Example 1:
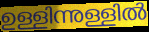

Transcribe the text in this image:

ഉള്ളിന്നുള്ളിൽ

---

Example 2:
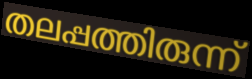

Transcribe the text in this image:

തലപ്പത്തിരുന്ന്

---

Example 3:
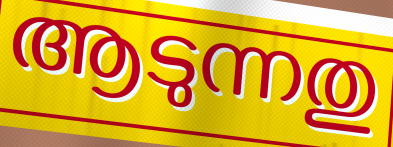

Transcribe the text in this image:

ആടുന്നതു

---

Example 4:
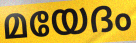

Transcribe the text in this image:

മയേദം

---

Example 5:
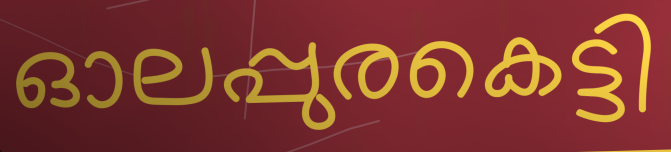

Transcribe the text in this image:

ഓലപ്പുരകെട്ടി